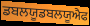
ਡਬਲਯੂਡਬਲਯੂਐਫ